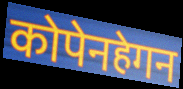
कोपेनहेगन